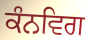
ਕੰਨਵਿਗ